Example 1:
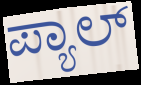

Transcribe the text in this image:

ಪ್ಯಾಲ್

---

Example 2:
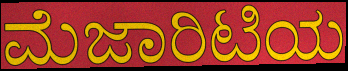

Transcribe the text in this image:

ಮೆಜಾರಿಟಿಯ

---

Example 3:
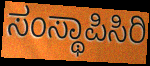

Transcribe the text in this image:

ಸಂಸ್ಥಾಪಿಸಿರಿ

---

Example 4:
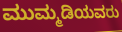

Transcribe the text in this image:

ಮುಮ್ಮಡಿಯವರು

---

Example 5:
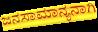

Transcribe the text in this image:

ಜನಸಾಮಾನ್ಯನಾಗಿ